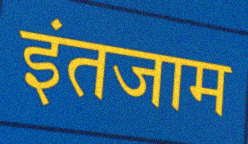
इंतजाम